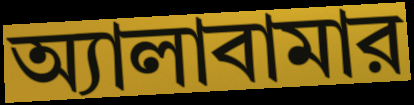
অ্যালাবামার